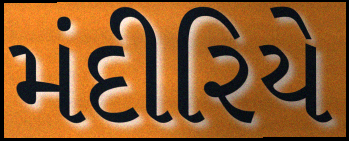
મંદીરિયે